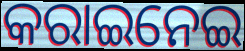
କରାଇନେଇ